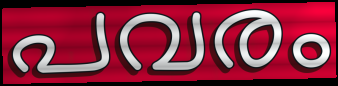
പവരം